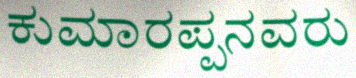
ಕುಮಾರಪ್ಪನವರು